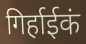
गिर्हाईकं